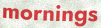
mornings